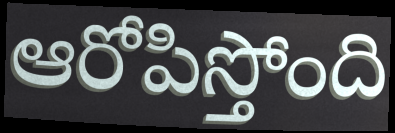
ఆరోపిస్తోంది